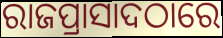
ରାଜପ୍ରାସାଦଠାରେ